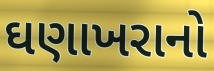
ઘણાખરાનો